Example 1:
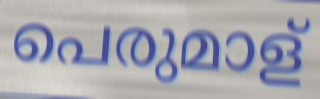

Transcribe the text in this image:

പെരുമാള്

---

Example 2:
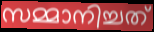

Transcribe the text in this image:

സമ്മാനിച്ചത്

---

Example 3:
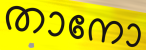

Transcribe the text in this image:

താനോ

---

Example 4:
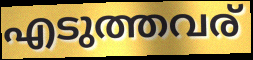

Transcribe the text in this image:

എടുത്തവര്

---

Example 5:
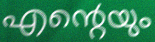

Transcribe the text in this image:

എന്റെയും